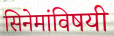
सिनेमांविषयी